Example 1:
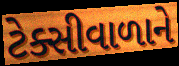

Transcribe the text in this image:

ટેક્સીવાળાને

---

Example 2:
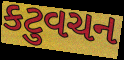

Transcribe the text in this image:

કટુવચન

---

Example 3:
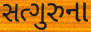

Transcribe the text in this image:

સત્ગુરુના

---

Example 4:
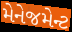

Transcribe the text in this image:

મેનેજમેન્ટ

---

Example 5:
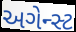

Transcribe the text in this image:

અગેન્સ્ટ